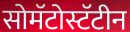
सोमॅटोस्टॅटीन